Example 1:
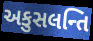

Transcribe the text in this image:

અકુસલન્તિ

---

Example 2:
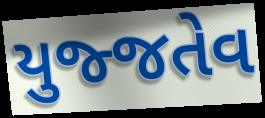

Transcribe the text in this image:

યુજ્જતેવ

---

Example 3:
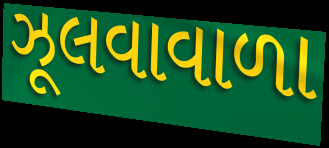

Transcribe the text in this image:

ઝૂલવાવાળા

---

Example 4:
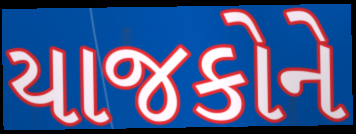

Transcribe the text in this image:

યાજકોને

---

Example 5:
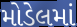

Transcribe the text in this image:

મોડેલમાં